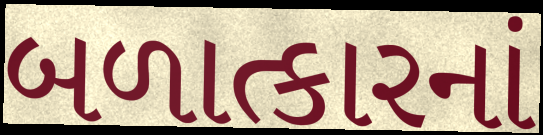
બળાત્કારનાં